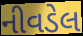
નીવડેલ